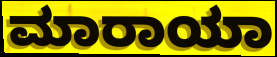
ಮಾರಾಯಾ